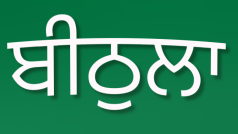
ਬੀਠੁਲਾ